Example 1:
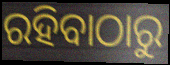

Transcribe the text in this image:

ରହିବାଠାରୁ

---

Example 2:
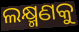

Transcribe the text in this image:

ଲକ୍ଷ୍ମଣକୁ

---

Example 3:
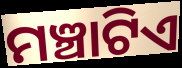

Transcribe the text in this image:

ମଞ୍ଚାଟିଏ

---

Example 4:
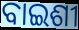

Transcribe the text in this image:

ବାଇଶୀ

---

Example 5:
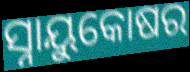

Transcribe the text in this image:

ସ୍ନାୟୁକୋଷର